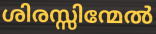
ശിരസ്സിന്മേൽ